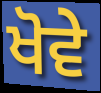
ਖੋਵੇ